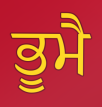
ਭੂਮੈ